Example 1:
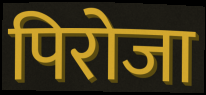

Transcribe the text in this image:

पिरोजा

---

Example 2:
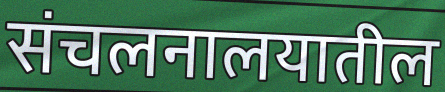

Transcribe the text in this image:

संचलनालयातील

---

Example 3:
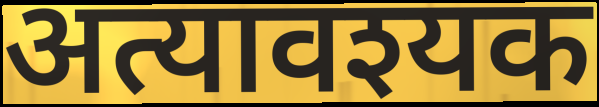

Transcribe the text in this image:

अत्यावश्यक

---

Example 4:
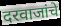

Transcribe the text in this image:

दरवाजांचे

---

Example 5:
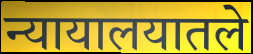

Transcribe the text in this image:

न्यायालयातले